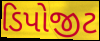
ડિપોજીટ